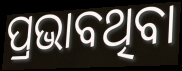
ପ୍ରଭାବଥିବା